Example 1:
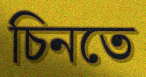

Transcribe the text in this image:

চিনতে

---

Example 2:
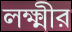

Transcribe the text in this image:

লক্ষ্মীর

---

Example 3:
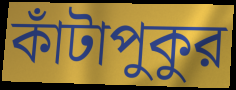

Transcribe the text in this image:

কাঁটাপুকুর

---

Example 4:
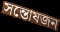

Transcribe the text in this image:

সন্তোষজন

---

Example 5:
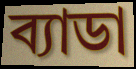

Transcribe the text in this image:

ব্যাডা